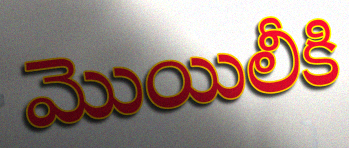
మొయిలీకి